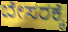
ಬೇಸರಕ್ಕೆ